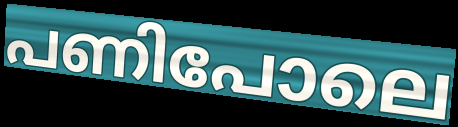
പണിപോലെ